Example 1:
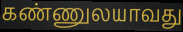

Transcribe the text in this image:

கண்ணுலயாவது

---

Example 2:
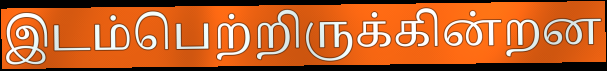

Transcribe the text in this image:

இடம்பெற்றிருக்கின்றன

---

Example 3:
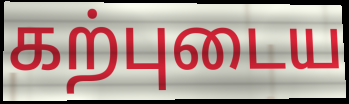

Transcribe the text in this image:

கற்புடைய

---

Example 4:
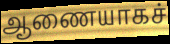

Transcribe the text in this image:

ஆணையாகச்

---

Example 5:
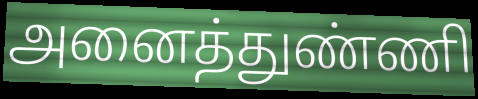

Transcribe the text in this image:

அனைத்துண்ணி